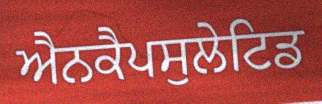
ਐਨਕੈਪਸੁਲੇਟਿਡ